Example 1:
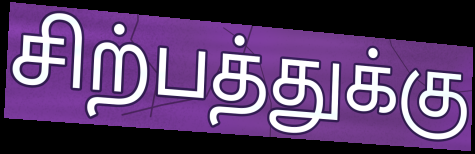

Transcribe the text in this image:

சிற்பத்துக்கு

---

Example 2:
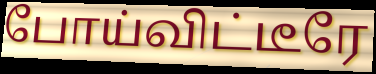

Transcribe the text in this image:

போய்விட்டீரே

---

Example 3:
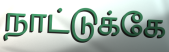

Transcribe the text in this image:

நாட்டுக்கே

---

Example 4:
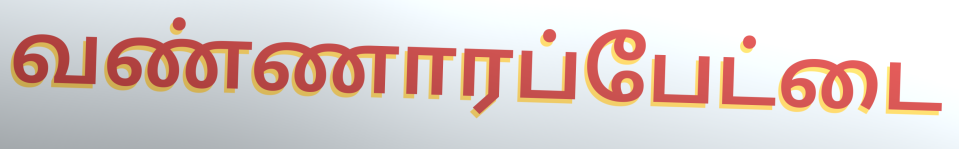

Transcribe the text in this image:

வண்ணாரப்பேட்டை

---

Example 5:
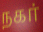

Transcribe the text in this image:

நகர்